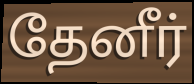
தேனீர்